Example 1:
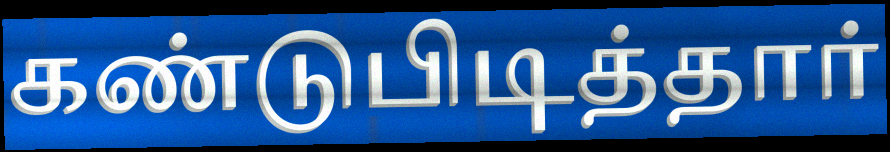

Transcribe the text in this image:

கண்டுபிடித்தார்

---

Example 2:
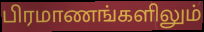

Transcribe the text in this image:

பிரமாணங்களிலும்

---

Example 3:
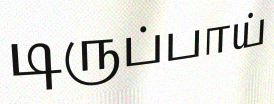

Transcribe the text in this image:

டிருப்பாய்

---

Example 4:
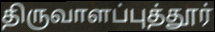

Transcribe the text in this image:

திருவாளப்புத்தூர்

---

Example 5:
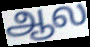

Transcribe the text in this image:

ஆல